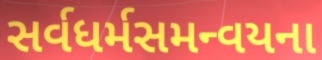
સર્વધર્મસમન્વયના